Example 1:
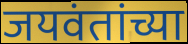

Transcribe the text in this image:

जयवंतांच्या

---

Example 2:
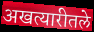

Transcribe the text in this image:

अखत्यारीतले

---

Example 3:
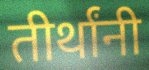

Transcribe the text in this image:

तीर्थांनी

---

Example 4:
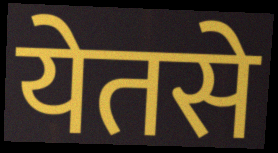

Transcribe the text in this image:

येतसे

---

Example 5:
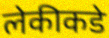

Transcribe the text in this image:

लेकीकडे